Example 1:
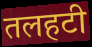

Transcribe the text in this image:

तलहटी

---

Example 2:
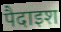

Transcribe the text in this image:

पैदाइश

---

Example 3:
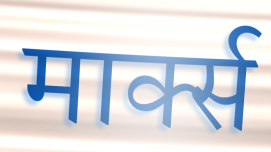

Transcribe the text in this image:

मार्क्स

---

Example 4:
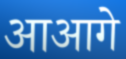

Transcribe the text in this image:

आआगे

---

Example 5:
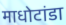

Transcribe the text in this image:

माधोटांडा